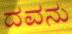
ದವನು